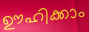
ഊഹിക്കാം